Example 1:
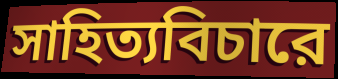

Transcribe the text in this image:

সাহিত্যবিচারে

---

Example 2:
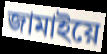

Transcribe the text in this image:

জামাইয়ে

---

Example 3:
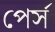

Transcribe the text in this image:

পের্স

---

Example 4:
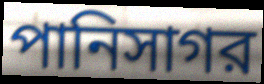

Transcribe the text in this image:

পানিসাগর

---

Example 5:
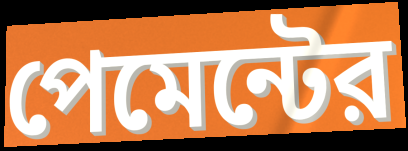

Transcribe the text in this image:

পেমেন্টের